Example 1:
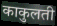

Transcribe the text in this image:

काकुलती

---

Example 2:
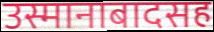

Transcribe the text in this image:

उस्मानाबादसह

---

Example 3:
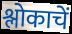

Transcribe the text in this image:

श्लोकाचें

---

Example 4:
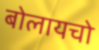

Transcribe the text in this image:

बोलायचो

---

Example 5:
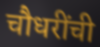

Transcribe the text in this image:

चौधरींची